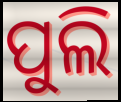
ପୁଲି